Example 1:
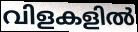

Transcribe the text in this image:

വിളകളിൽ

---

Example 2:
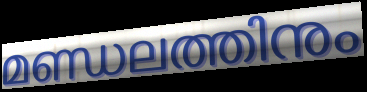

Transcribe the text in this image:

മണ്ഡലത്തിനും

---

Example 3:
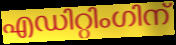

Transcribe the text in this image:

എഡിറ്റിംഗിന്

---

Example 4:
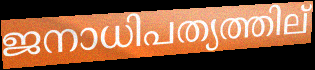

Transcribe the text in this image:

ജനാധിപത്യത്തില്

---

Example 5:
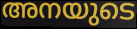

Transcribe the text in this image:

അനയുടെ